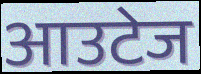
आउटेज